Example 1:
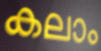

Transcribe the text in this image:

കലാം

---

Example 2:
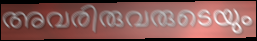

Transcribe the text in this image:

അവരിരുവരുടെയും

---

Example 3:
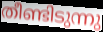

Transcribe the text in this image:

തീണ്ടിടുന്നു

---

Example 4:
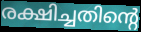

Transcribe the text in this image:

രക്ഷിച്ചതിന്റെ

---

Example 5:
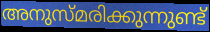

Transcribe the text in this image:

അനുസ്മരിക്കുന്നുണ്ട്